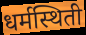
धर्मस्थिती